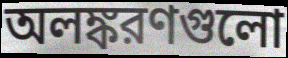
অলঙ্করণগুলো